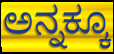
ಅನ್ನಕ್ಕೂ